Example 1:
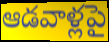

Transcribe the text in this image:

ఆడవాళ్లపై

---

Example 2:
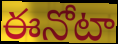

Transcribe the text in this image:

ఈనోటా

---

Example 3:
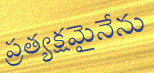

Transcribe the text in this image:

ప్రత్యక్షమైనేను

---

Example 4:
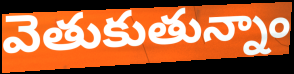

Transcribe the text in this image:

వెతుకుతున్నాం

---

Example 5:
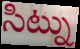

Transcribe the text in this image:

సిట్ను